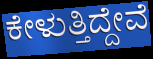
ಕೇಳುತ್ತಿದ್ದೇವೆ